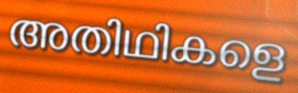
അതിഥികളെ